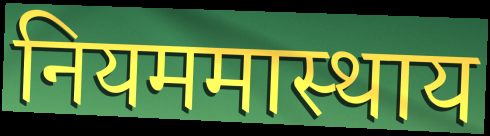
नियममास्थाय